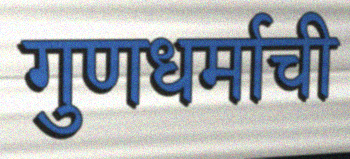
गुणधर्माची